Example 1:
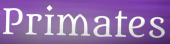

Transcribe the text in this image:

Primates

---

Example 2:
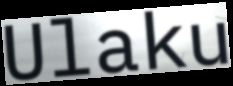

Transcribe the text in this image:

Ulaku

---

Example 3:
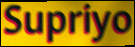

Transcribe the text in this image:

Supriyo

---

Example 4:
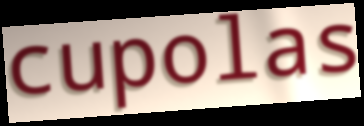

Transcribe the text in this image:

cupolas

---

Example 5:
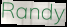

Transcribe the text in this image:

Randy